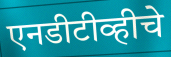
एनडीटीव्हीचे